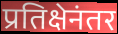
प्रतिक्षेनंतर